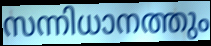
സന്നിധാനത്തും